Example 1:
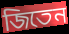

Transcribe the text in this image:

জিতেন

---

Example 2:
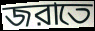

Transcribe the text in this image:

জরাতে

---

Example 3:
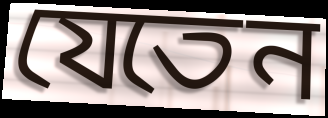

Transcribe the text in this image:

যেতেন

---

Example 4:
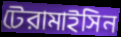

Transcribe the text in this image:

টেরামাইসিন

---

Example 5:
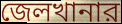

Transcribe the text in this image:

জেলখানার